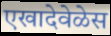
एखादेवेळेस